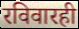
रविवारही